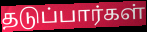
தடுப்பார்கள்